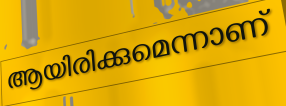
ആയിരിക്കുമെന്നാണ്